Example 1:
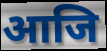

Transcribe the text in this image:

आजि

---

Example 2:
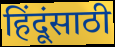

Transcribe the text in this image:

हिंदूंसाठी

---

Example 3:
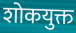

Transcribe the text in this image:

शोकयुक्त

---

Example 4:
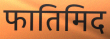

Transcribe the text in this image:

फातिमिद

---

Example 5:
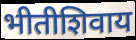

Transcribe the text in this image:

भीतीशिवाय